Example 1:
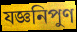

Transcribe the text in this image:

যজ্ঞনিপুণ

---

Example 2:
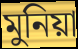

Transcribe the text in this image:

মুনিয়া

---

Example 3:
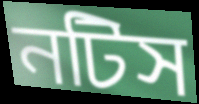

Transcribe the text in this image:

নটিস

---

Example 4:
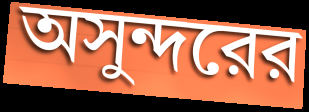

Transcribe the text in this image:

অসুন্দরের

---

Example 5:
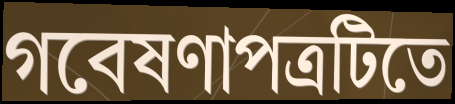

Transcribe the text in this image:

গবেষণাপত্রটিতে